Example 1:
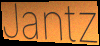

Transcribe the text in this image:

Jantz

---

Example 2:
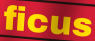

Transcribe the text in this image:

ficus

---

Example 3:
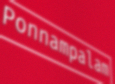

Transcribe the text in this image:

Ponnampalam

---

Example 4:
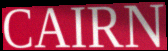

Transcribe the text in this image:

CAIRN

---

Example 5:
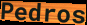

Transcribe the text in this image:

Pedros